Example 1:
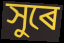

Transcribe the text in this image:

সুৰে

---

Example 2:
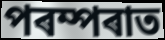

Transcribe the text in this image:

পৰম্পৰাত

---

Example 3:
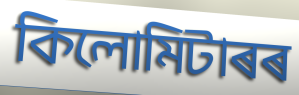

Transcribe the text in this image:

কিলোমিটাৰৰ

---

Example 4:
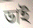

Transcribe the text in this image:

ডাই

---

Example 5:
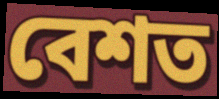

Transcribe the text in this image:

বেশত